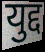
युद्द